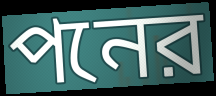
পনের